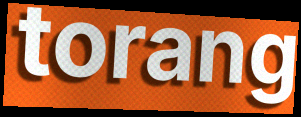
torang